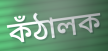
কঁঠালক